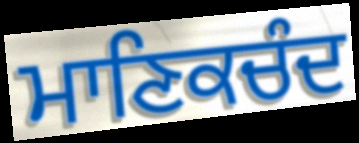
ਮਾਣਿਕਚੰਦ